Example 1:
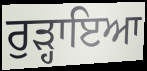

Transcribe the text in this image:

ਰੁੜ੍ਹਾਇਆ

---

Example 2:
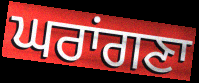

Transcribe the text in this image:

ਘਰਾਂਗਣਾ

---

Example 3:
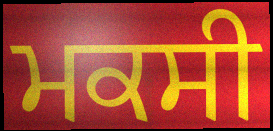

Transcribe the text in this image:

ਮਕਸੀ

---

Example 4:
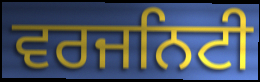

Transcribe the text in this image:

ਵਰਜਨਿਟੀ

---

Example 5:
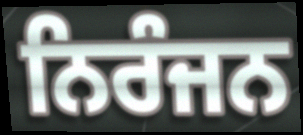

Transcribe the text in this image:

ਨਿਰੰਜਨ